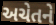
અચેતને